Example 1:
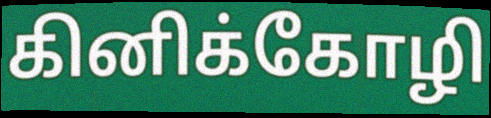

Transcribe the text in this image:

கினிக்கோழி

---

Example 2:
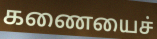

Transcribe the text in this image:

கணையைச்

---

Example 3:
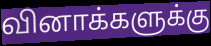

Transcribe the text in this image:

வினாக்களுக்கு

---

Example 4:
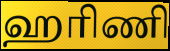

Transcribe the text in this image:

ஹரிணி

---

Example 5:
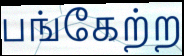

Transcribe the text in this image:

பங்கேற்ற